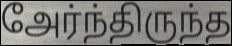
அேர்ந்திருந்த